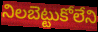
నిలబెట్టుకోలేని